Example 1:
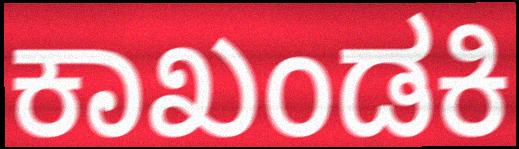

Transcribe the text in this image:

ಕಾಖಂಡಕಿ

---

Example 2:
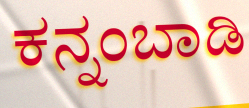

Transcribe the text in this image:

ಕನ್ನಂಬಾಡಿ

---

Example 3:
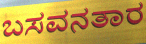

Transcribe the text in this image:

ಬಸವನತಾರ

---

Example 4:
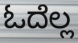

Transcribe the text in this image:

ಓದೆಲ್ಲ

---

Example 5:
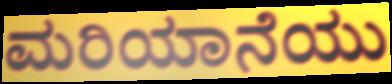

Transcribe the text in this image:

ಮರಿಯಾನೆಯು